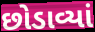
છોડાવ્યાં